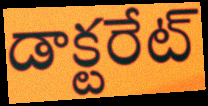
డాక్టరేట్